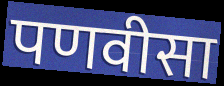
पणवीसा